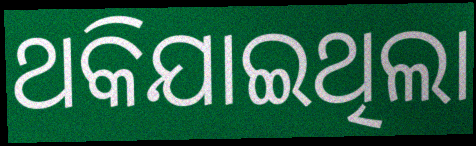
ଥକିଯାଇଥିଲା